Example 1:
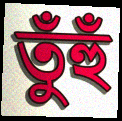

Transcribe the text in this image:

তুঁহুঁ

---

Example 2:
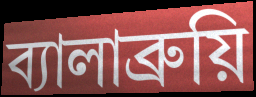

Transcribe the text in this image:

ব্যালাব্রুয়ি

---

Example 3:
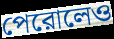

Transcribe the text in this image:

পেরোলেও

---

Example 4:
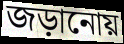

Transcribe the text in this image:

জড়ানোয়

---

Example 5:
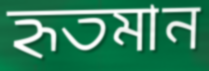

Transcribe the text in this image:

হৃতমান